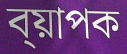
ব্য়াপক